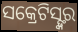
ସକ୍ରେଟିସ୍ଙ୍କର